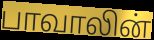
பாவாலின்